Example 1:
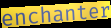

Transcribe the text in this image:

enchanter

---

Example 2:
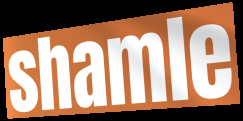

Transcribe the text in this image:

shamle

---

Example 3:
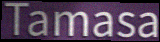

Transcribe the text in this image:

Tamasa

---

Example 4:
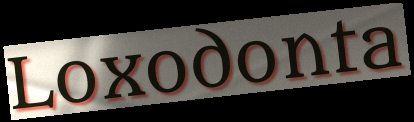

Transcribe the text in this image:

Loxodonta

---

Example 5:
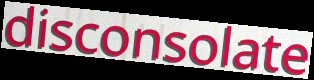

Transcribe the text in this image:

disconsolate